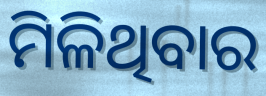
ମିଳିଥିବାର